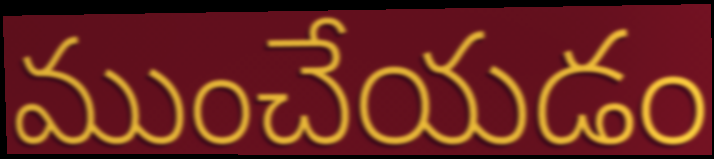
ముంచేయడం